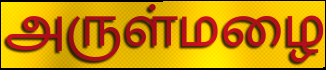
அருள்மழை